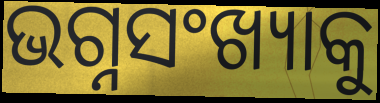
ଭଗ୍ନସଂଖ୍ୟାକୁ